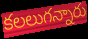
కలలుగన్నారు